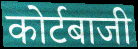
कोर्टबाजी